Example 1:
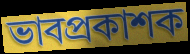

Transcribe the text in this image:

ভাবপ্রকাশক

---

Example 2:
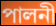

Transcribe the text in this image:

পালনী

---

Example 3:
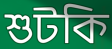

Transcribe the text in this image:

শুটকি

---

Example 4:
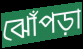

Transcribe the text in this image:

ঝোঁপড়া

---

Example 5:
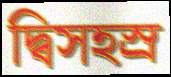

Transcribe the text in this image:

দ্বিসহস্র